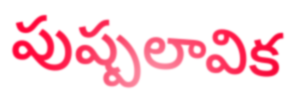
పుష్పలావిక